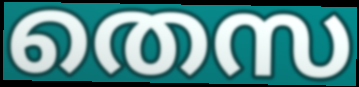
തെസ